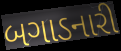
બગાડનારી